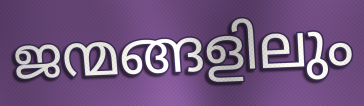
ജന്മങ്ങളിലും